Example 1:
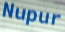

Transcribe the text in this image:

Nupur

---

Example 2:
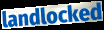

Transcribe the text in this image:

landlocked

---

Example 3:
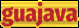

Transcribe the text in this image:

guajava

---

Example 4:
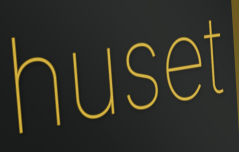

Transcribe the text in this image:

huset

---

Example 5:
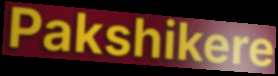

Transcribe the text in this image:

Pakshikere